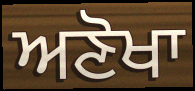
ਅਣੋਖਾ